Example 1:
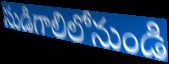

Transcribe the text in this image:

సుడిగాలిలోనుండి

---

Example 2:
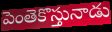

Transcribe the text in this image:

పెంతెకొస్తునాడు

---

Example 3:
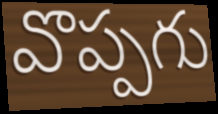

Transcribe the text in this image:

వొప్పగు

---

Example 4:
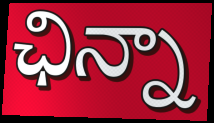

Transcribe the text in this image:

ఛిన్నా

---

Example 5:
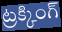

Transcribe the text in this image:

ట్రక్కింగ్